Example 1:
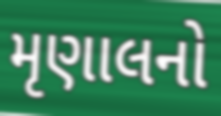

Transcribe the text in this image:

મૃણાલનો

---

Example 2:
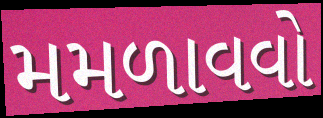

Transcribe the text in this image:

મમળાવવો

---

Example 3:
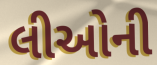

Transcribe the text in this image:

લીઓની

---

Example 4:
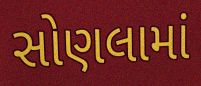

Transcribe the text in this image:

સોણલામાં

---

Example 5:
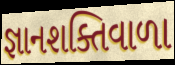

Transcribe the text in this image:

જ્ઞાનશક્તિવાળા